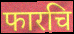
फारचि